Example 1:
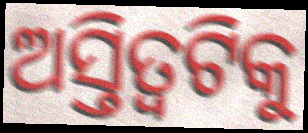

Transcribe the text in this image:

ଅସ୍ତିତ୍ୱଟିକୁ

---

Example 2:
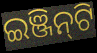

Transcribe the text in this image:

ଇଞ୍ଜିନ୍‌ଟି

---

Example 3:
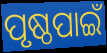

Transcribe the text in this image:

ପୃଷ୍ଠପାଇଁ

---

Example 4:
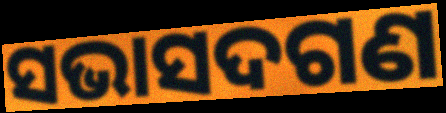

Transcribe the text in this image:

ସଭାସଦଗଣ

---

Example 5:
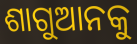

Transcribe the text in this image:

ଶାଗୁଆନକୁ